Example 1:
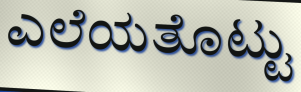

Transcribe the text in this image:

ಎಲೆಯತೊಟ್ಟು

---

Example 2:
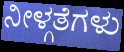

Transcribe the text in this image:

ನೀಳ್ಗತೆಗಳು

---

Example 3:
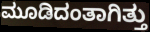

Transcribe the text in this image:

ಮೂಡಿದಂತಾಗಿತ್ತು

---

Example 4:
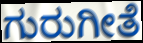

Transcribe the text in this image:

ಗುರುಗೀತೆ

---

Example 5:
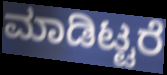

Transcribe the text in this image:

ಮಾಡಿಟ್ಟರೆ